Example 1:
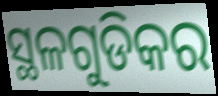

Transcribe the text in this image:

ସ୍ଥଳଗୁଡିକର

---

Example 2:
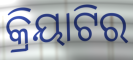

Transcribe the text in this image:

କ୍ରିୟାଟିର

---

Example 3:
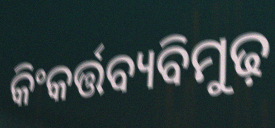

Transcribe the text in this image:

କିଂକର୍ତ୍ତବ୍ୟବିମୁଢ଼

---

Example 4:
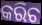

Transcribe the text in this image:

କରିଚ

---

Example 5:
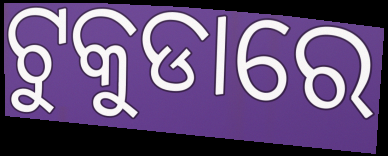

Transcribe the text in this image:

ଟୁକୁଡାରେ